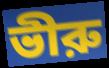
ভীরু